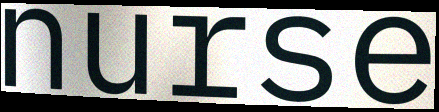
nurse